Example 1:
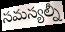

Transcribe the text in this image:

సమస్యల్నీ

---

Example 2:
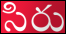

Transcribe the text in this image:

సిరు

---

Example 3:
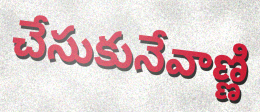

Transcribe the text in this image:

చేసుకునేవాణ్ణి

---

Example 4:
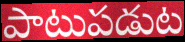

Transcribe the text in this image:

పాటుపడుట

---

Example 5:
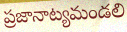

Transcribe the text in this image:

ప్రజానాట్యమండలి